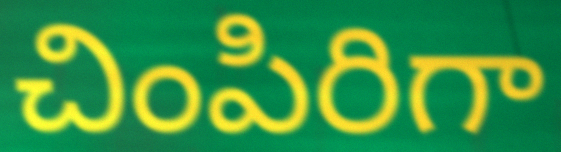
చింపిరిగా